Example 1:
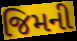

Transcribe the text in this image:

જિમની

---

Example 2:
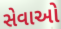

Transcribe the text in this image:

સેવાઓ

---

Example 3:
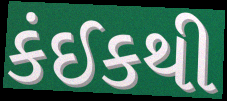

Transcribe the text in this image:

કંઈકથી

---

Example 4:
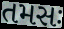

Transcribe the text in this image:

તમસઃ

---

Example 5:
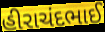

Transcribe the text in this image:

હીરાચંદભાઈ